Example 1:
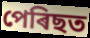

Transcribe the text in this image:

পেৰিছত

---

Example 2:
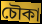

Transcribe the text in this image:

চৌকা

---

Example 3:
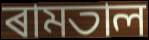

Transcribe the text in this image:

ৰামতাল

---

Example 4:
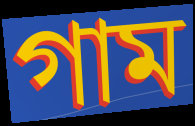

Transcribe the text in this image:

গাম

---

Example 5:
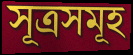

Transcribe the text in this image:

সূত্ৰসমূহ